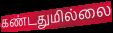
கண்டதுமில்லை